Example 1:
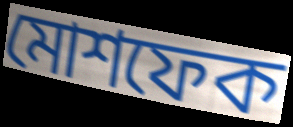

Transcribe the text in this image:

মোশফেক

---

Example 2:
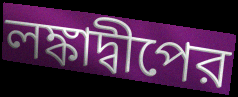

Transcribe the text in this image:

লঙ্কাদ্বীপের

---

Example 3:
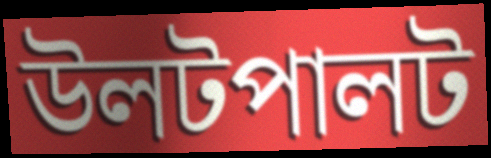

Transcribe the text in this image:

উলটপালট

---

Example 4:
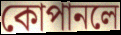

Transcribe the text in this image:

কোপানলে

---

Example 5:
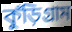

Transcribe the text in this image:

কুঁড়িগ্রাম